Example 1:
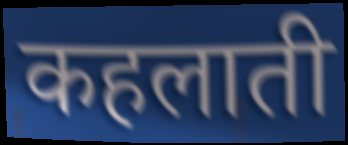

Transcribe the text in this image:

कहलाती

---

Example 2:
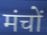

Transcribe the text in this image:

मंचों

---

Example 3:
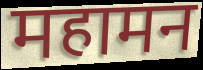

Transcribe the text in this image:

महामन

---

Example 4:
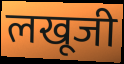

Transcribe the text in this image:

लखूजी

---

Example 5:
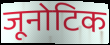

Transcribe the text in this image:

जूनोटिक